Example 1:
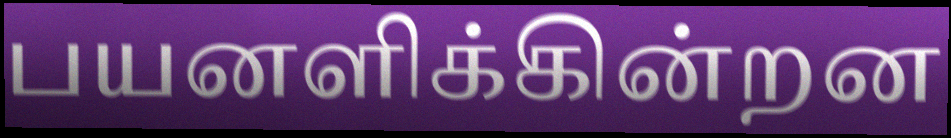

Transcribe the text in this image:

பயனளிக்கின்றன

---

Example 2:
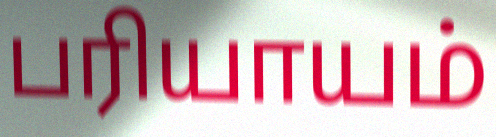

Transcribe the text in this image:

பரியாயம்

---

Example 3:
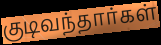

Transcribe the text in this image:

குடிவந்தார்கள்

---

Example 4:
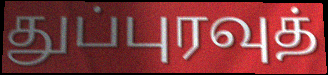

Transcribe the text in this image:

துப்புரவுத்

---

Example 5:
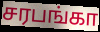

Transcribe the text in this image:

சரபங்கா